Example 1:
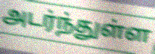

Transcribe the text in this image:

அடர்ந்துள்ள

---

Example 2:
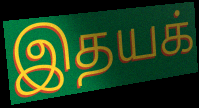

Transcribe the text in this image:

இதயக்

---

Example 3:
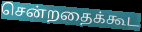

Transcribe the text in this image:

சென்றதைக்கூட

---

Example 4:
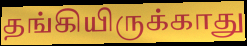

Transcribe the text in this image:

தங்கியிருக்காது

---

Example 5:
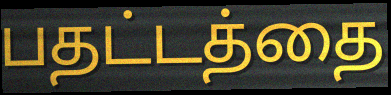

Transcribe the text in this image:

பதட்டத்தை